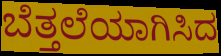
ಬೆತ್ತಲೆಯಾಗಿಸಿದ